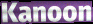
Kanoon